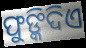
ଫୁଙ୍କିଦିଏ